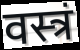
वस्त्रं